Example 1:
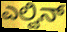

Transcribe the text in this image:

ಎಲ್ವಿನ್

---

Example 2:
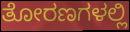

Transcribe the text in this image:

ತೋರಣಗಳಲ್ಲಿ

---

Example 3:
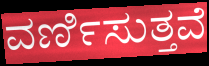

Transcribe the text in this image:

ವರ್ಣಿಸುತ್ತವೆ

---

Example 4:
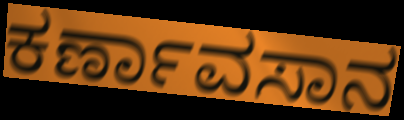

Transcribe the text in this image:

ಕರ್ಣಾವಸಾನ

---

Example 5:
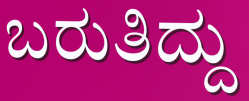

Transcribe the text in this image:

ಬರುತಿದ್ದು